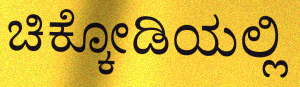
ಚಿಕ್ಕೋಡಿಯಲ್ಲಿ